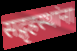
सद्गृहस्थांना